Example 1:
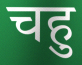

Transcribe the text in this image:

चहु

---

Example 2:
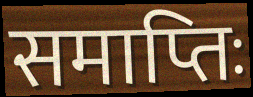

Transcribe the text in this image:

समाप्तिः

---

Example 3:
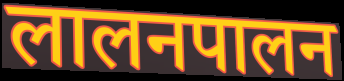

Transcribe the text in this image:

लालनपालन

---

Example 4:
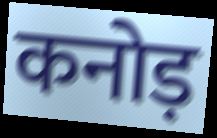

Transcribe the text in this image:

कनोड़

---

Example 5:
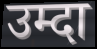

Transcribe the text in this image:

उम्दा